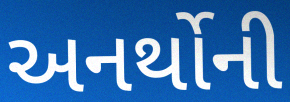
અનર્થોની